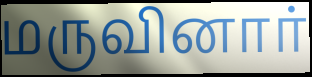
மருவினார்